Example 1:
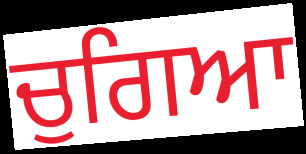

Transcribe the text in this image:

ਚੁਗਿਆ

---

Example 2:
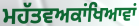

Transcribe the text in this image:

ਮਹੱਤਵਅਕਾਂਖਿਆਵਾਂ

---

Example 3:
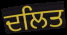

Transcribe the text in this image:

ਦਲਿਤ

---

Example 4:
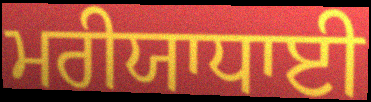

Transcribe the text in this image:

ਮਰੀਯਾਧਾਈ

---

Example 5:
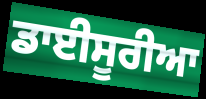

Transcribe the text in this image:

ਡਾਈਸੂਰੀਆ